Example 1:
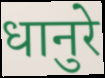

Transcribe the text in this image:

धानुरे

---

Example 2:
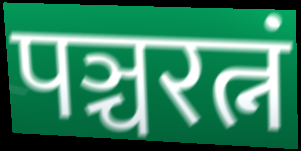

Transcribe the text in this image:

पञ्चरत्नं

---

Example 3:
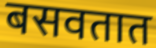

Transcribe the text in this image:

बसवतात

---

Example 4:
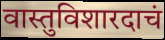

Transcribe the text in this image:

वास्तुविशारदाचं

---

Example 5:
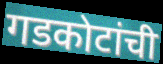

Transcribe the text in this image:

गडकोटांची